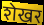
शेखर